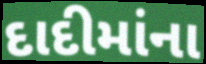
દાદીમાંના